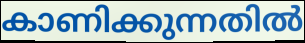
കാണിക്കുന്നതിൽ